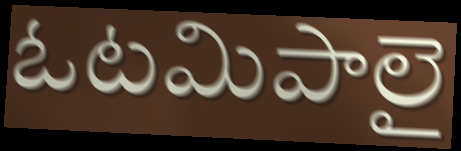
ఓటమిపాలై